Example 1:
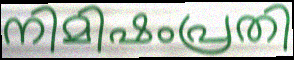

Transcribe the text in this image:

നിമിഷംപ്രതി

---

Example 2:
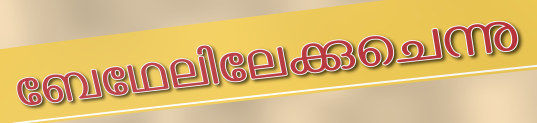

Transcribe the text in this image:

ബേഥേലിലേക്കുചെന്നു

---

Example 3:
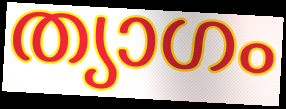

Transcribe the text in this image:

ത്യാഗം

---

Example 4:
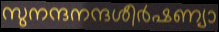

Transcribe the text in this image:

സുനന്ദനന്ദശീർഷണ്യാ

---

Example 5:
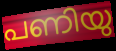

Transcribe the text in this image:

പണിയു